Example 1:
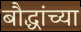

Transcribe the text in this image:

बौद्धांच्या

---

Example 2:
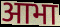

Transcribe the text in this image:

आभा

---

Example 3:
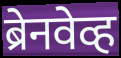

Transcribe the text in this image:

ब्रेनवेव्ह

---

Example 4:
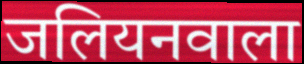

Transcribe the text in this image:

जलियनवाला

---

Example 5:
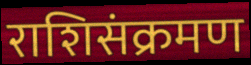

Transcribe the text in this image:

राशिसंक्रमण